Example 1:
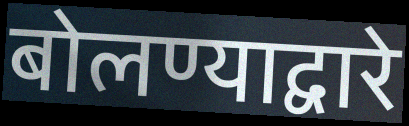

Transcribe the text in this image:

बोलण्याद्वारे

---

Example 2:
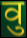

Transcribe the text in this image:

वु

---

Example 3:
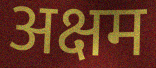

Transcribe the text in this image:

अक्षम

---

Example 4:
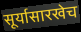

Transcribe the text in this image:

सूर्यासारखेच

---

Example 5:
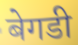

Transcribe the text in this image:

बेगडी